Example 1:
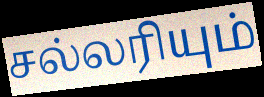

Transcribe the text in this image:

சல்லரியும்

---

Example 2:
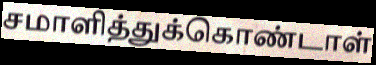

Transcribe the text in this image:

சமாளித்துக்கொண்டாள்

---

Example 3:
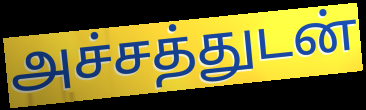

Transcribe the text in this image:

அச்சத்துடன்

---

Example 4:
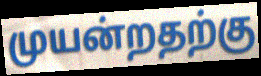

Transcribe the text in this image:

முயன்றதற்கு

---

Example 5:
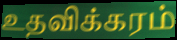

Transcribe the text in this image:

உதவிக்கரம்